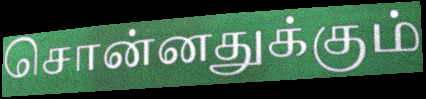
சொன்னதுக்கும்